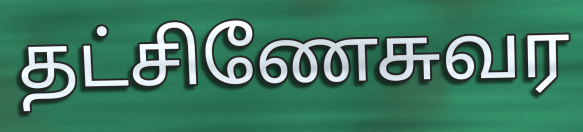
தட்சிணேசுவர